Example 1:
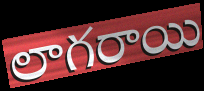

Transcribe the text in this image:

లాగరాయి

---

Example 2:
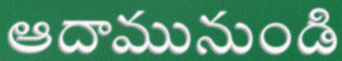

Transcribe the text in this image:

ఆదామునుండి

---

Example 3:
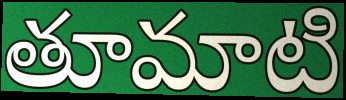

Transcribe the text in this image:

తూమాటి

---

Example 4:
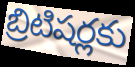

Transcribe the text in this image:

బ్రిటిషర్లకు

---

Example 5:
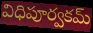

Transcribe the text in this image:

విధిపూర్వకమ్